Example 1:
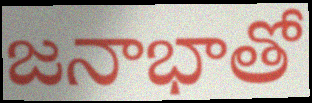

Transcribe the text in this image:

జనాభాతో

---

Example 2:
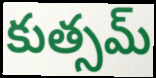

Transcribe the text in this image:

కుత్సమ్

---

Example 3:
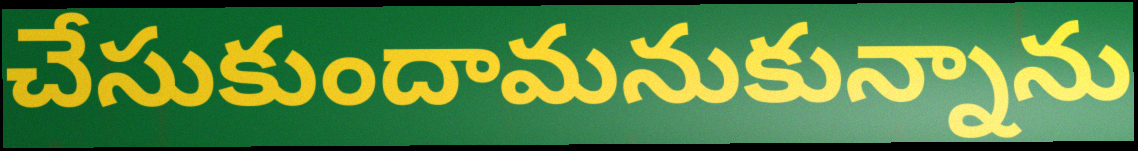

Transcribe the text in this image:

చేసుకుందామనుకున్నాను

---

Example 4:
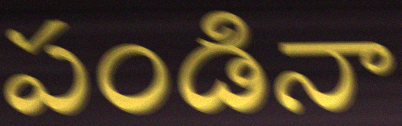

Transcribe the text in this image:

పండినా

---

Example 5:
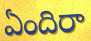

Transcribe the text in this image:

ఏందిరా